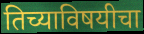
तिच्याविषयीचा